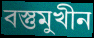
বস্তুমুখীন